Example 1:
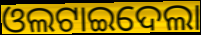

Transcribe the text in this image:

ଓଲଟାଇଦେଲା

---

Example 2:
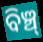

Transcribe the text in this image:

ବିଞ୍ଚ୍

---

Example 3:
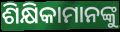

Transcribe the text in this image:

ଶିକ୍ଷିକାମାନଙ୍କୁ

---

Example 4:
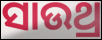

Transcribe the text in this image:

ସାଉଥ୍ର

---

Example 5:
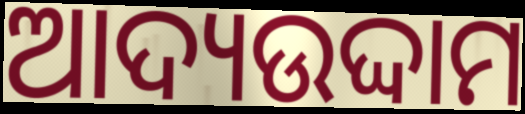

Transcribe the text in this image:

ଆଦ୍ୟଉଦ୍ଦାମ